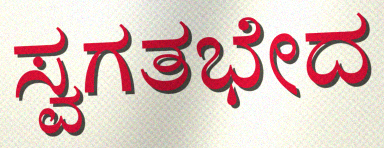
ಸ್ವಗತಭೇದ